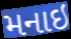
મનાઇ